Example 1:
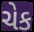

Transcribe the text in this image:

ચેક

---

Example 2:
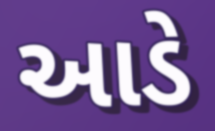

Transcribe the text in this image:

આડે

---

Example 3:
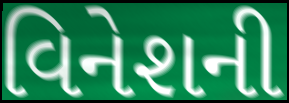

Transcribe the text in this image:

વિનેશની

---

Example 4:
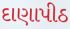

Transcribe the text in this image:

દાણાપીઠ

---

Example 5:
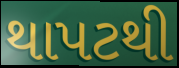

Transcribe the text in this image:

થાપટથી